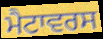
ਮੈਟਾਵਰਸ